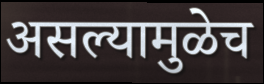
असल्यामुळेच